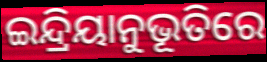
ଇନ୍ଦ୍ରିୟାନୁଭୂତିରେ